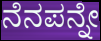
ನೆನಪನ್ನೇ